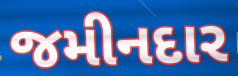
જમીનદાર